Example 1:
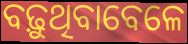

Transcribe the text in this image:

ବଢ଼ୁଥିବାବେଳେ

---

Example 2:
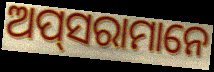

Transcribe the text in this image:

ଅପ୍‍ସରାମାନେ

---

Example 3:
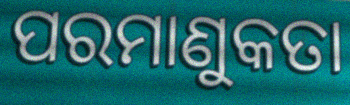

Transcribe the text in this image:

ପରମାଣୁକତା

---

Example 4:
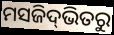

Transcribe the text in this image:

ମସଜିଦ୍‌ଭିତରୁ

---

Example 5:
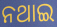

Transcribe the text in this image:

ନଥାଇ